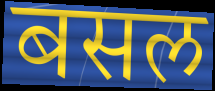
बसल